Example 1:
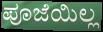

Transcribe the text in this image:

ಪೂಜೆಯಿಲ್ಲ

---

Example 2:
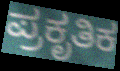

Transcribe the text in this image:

ಪ್ರಕೃತಿಕ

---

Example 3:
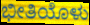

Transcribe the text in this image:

ಭೀತಿಯೊಳು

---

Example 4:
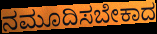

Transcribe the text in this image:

ನಮೂದಿಸಬೇಕಾದ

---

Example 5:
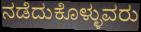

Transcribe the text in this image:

ನಡೆದುಕೊಳ್ಳುವರು